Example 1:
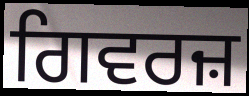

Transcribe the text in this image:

ਗਿਵਰਜ਼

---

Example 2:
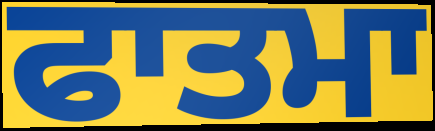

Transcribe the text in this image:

ਫਾਤਮਾ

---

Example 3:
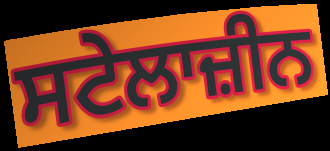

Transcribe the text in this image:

ਸਟੇਲਾਜ਼ੀਨ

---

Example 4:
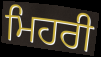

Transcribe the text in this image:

ਮਿਹਰੀ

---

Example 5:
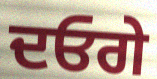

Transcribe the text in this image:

ਦਓਗੇ